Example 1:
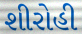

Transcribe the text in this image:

શીરોહી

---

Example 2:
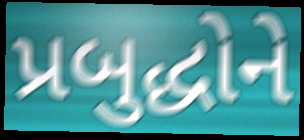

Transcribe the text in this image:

પ્રબુદ્ધોને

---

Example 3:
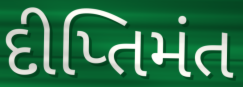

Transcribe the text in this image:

દીપ્તિમંત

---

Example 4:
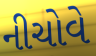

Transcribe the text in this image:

નીચોવે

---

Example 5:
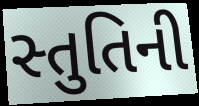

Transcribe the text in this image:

સ્તુતિની